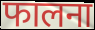
फालना